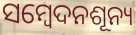
ସମ୍ବେଦନଶୂନ୍ୟ